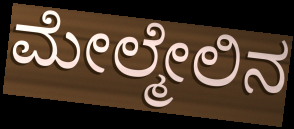
ಮೇಲ್ಮೇಲಿನ